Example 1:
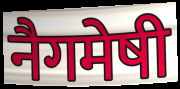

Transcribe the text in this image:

नैगमेषी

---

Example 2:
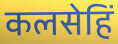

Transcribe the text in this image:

कलसेहिं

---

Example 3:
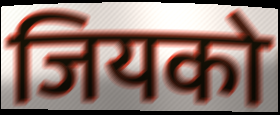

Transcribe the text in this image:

जियको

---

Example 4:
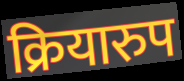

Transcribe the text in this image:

क्रियारुप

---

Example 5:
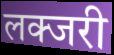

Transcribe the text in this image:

लक्जरी